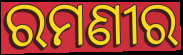
ରମଣୀର